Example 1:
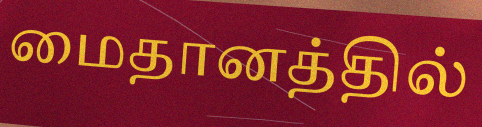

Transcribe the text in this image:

மைதானத்தில்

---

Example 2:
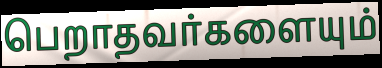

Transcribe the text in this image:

பெறாதவர்களையும்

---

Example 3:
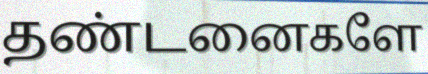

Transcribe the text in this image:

தண்டனைகளே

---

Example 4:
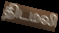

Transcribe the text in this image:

திடமலி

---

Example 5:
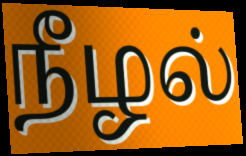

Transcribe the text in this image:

நீழல்